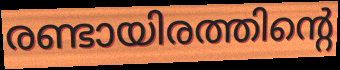
രണ്ടായിരത്തിന്റെ